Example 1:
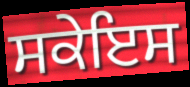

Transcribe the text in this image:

ਸਕੇਇਸ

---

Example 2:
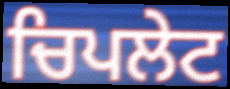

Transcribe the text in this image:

ਚਿਪਲੇਟ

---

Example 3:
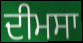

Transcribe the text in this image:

ਦੀਮਸਾ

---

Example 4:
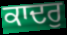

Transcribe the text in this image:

ਕਾਦਰੁ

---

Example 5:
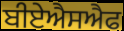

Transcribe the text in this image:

ਬੀਏਐਸਐਫ